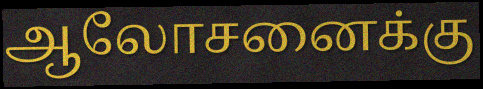
ஆலோசனைக்கு